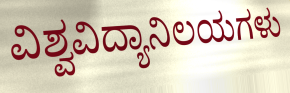
ವಿಶ್ವವಿದ್ಯಾನಿಲಯಗಳು